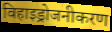
विहाइड्रोजनीकरण